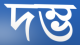
দম্ভ